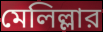
মেলিল্লার